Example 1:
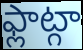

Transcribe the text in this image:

ఫ్లాట్గా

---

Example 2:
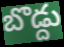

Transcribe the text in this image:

బొడ్దు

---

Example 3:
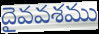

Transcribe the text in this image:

దైవవశము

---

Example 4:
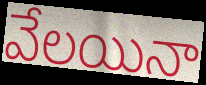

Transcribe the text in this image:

వేలయినా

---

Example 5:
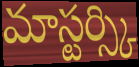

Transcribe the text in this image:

మాస్టర్స్కి